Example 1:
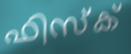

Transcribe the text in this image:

ഫിസ്ക്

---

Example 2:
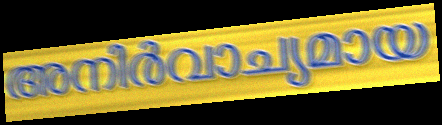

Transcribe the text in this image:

അനിർവാച്യമായ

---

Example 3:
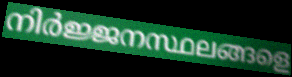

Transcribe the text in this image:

നിർജ്ജനസ്ഥലങ്ങളെ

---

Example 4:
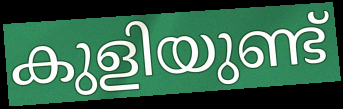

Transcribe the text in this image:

കുളിയുണ്ട്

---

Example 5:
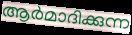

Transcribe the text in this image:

ആർമാദിക്കുന്ന